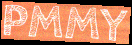
PMMY